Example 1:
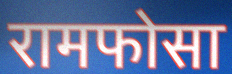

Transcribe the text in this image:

रामफोसा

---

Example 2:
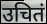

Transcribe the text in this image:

उचितं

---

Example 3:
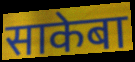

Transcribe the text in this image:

साकेबा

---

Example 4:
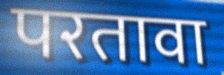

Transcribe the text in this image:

परतावा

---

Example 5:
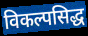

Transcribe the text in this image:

विकल्पसिद्ध